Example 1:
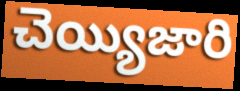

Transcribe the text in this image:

చెయ్యిజారి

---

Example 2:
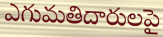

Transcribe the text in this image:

ఎగుమతిదారులపై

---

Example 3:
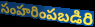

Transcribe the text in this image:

సంహరింపబడిరి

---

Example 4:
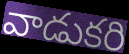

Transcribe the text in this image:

వాడుకరి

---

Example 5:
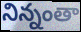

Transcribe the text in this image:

నిన్నంతా